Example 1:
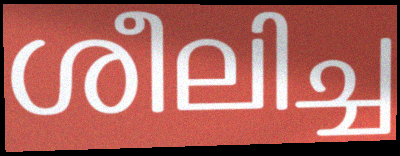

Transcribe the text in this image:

ശീലിച്ച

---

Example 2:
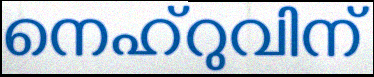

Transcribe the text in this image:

നെഹ്റുവിന്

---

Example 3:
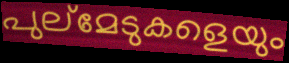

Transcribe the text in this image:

പുല്മേടുകളെയും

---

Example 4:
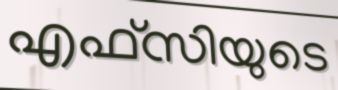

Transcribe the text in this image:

എഫ്സിയുടെ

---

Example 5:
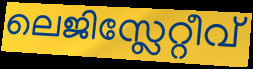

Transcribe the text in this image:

ലെജിസ്ലേറ്റീവ്